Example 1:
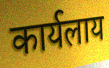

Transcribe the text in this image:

कार्यलाय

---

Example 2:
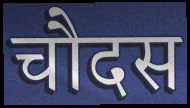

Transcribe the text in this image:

चौदस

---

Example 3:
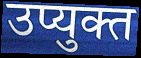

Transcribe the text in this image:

उप्युक्त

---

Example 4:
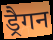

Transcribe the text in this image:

ड्रैगन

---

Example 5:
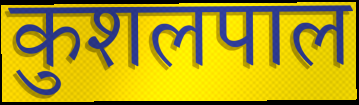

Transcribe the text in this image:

कुशलपाल